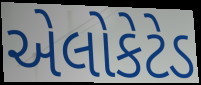
એલોકેટેડ